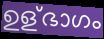
ഉള്ഭാഗം